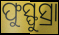
ଫୁସ୍ଫୁସ୍ରା